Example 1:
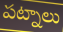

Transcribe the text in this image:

పట్నాలు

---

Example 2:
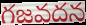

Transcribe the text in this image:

గజవదన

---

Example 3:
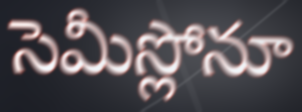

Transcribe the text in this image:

సెమీస్లోనూ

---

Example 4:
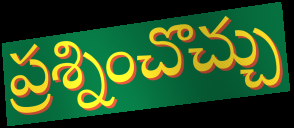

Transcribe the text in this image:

ప్రశ్నించొచ్చు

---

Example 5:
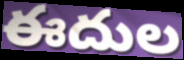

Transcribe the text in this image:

ఈదుల